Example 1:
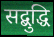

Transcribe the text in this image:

सद्बुद्धि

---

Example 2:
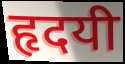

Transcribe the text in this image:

हृदयी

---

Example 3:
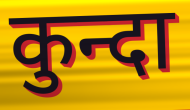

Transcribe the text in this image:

कुन्दा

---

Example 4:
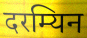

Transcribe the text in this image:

दरम्यिन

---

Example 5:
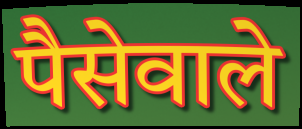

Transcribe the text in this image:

पैसेवाले